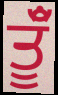
ਤੂੰਁ